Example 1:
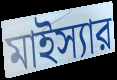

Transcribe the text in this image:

মাইস্যার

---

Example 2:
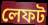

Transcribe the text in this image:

লেফট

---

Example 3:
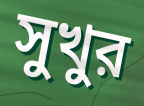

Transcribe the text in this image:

সুখুর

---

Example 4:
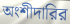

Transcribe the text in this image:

অংশীদারির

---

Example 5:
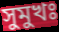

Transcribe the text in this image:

সুমুখঃ